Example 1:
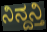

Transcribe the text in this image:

ನಿನ್ದನ್ತಿ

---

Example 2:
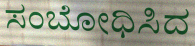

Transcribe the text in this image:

ಸಂಬೋಧಿಸಿದ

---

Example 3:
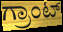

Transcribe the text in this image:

ಗ್ರಾಂಟ್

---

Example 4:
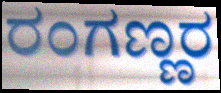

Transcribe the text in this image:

ರಂಗಣ್ಣರ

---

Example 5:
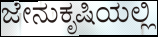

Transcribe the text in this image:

ಜೇನುಕೃಷಿಯಲ್ಲಿ